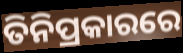
ତିନିପ୍ରକାରରେ